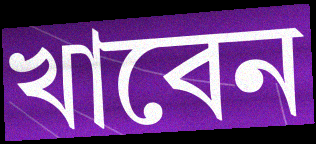
খাবেন